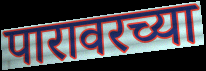
पारावरच्या